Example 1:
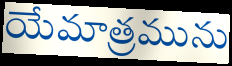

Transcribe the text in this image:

యేమాత్రమును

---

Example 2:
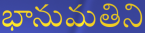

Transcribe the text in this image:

భానుమతిని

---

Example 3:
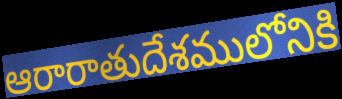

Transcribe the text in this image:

ఆరారాతుదేశములోనికి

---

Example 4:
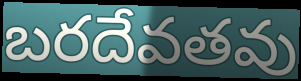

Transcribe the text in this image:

బరదేవతవు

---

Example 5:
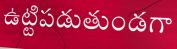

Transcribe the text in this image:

ఉట్టిపడుతుండగా